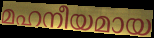
മഹനീയമായ